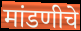
मांडणीचे